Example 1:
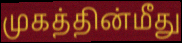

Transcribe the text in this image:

முகத்தின்மீது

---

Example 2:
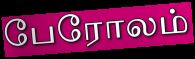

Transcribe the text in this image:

பேரோலம்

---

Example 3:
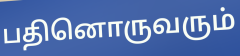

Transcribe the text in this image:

பதினொருவரும்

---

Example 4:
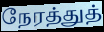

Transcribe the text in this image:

நேரத்துத்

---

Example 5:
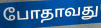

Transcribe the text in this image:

போதாவது